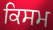
ਕਿਸਮ